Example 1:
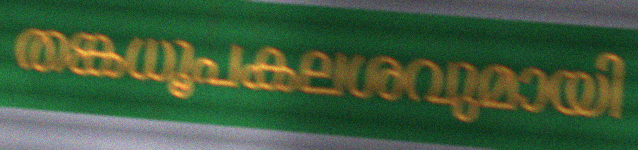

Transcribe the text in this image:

തങ്കധൂപകലശവുമായി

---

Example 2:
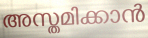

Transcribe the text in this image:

അസ്തമിക്കാൻ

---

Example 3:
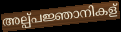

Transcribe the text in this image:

അല്പ്പജ്ഞാനികള്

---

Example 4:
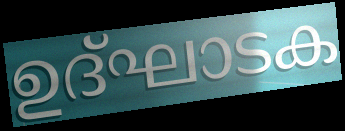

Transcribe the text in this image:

ഉദ്ഘാടക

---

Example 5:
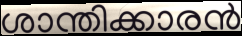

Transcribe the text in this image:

ശാന്തിക്കാരൻ